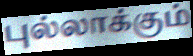
புல்லாக்கும்